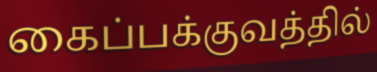
கைப்பக்குவத்தில்